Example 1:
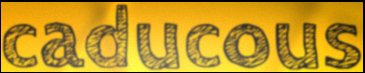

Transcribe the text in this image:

caducous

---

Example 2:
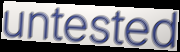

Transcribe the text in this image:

untested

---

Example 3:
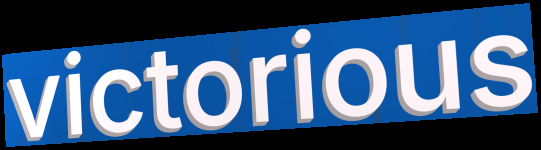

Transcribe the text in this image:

victorious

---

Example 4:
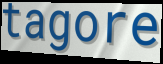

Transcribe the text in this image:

tagore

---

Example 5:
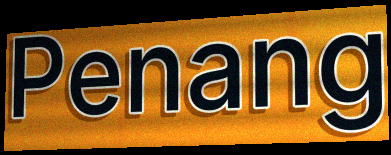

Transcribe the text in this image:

Penang